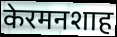
केरमनशाह